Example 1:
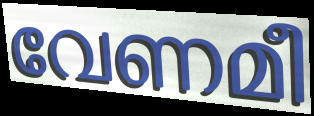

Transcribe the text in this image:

വേണമീ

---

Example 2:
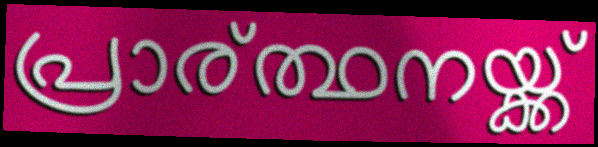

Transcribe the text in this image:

പ്രാര്ത്ഥനയ്ക്ക്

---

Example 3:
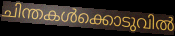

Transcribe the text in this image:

ചിന്തകൾക്കൊടുവിൽ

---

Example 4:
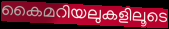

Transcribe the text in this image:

കൈമറിയലുകളിലൂടെ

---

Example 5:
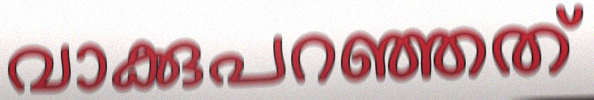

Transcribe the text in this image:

വാക്കുപറഞ്ഞത്